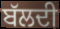
ਬੱਲਦੀ